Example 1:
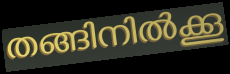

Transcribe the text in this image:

തങ്ങിനിൽക്കൂ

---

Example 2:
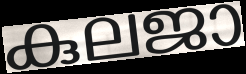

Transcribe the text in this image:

കുലജാ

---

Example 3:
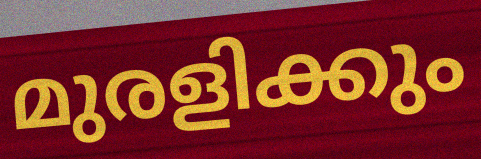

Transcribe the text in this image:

മുരളിക്കും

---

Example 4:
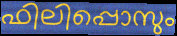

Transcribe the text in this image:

ഫിലിപ്പൊസും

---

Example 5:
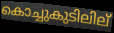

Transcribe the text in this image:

കൊച്ചുകുടിലില്